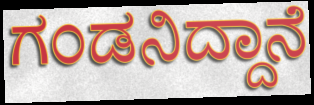
ಗಂಡನಿದ್ದಾನೆ